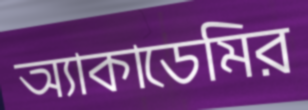
অ্যাকাডেমির